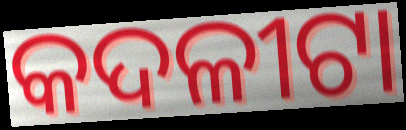
କଦଳୀଟା